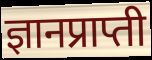
ज्ञानप्राप्ती